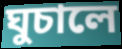
ঘুচালে